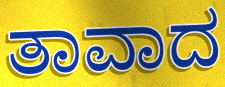
ತಾವಾದ